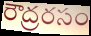
రౌద్రరసం